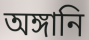
অঙ্গানি